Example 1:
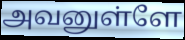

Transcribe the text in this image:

அவனுள்ளே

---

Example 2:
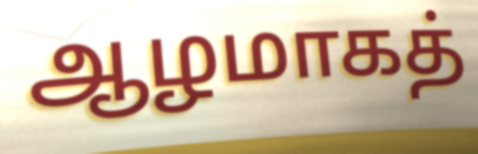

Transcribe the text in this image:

ஆழமாகத்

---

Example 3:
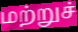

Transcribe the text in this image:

மற்றுச்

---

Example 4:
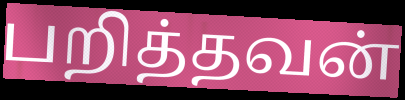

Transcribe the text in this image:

பறித்தவன்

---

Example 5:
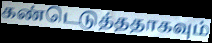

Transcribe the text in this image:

கண்டெடுத்ததாகவும்